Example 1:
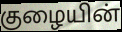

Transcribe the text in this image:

குழையின்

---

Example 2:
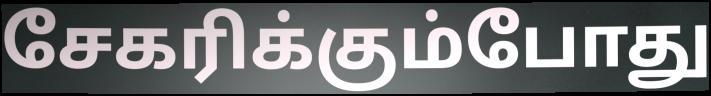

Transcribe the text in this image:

சேகரிக்கும்போது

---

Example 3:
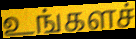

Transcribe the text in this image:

உங்களச்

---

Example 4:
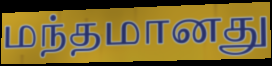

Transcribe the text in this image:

மந்தமானது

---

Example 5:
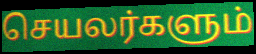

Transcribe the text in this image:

செயலர்களும்